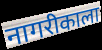
नागरीकाला